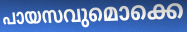
പായസവുമൊക്കെ